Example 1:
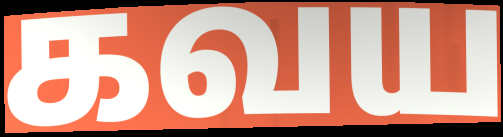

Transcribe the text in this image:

கவய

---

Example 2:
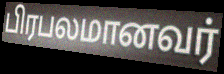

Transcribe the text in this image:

பிரபலமானவர்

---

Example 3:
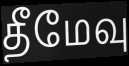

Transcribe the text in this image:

தீமேவு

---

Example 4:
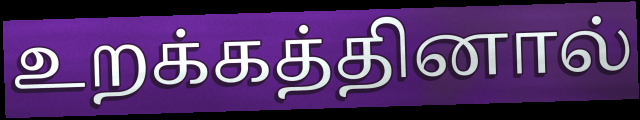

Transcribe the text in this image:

உறக்கத்தினால்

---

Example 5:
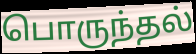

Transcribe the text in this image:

பொருந்தல்